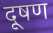
दूषण